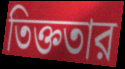
তিক্ততার